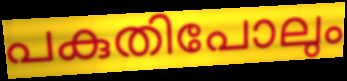
പകുതിപോലും